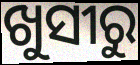
ଖୁସୀରୁ